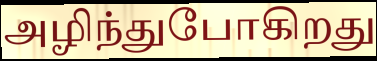
அழிந்துபோகிறது